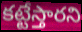
కట్టేస్తారని